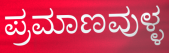
ಪ್ರಮಾಣವುಳ್ಳ